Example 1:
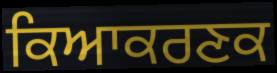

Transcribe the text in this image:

ਕਿਆਕਰਣਕ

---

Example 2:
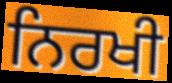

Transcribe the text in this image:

ਨਿਰਖੀ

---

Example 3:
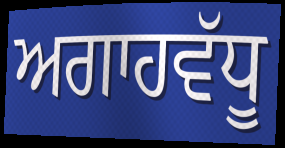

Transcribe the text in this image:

ਅਗਾਹਵੱਧੂ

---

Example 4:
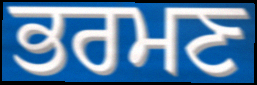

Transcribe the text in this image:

ਭਰਮਣ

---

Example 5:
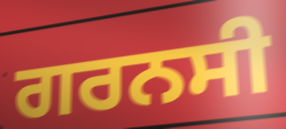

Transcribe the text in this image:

ਗਰਨਸੀ